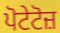
ਪੋਟੇਟੋਜ਼